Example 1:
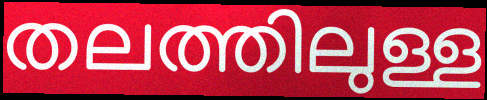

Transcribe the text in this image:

തലത്തിലുള്ള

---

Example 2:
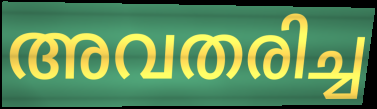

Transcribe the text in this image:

അവതരിച്ച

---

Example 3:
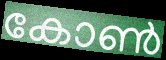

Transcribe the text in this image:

കോൺ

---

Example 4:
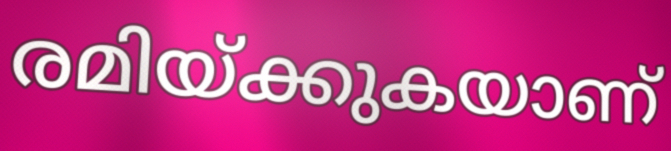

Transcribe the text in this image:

രമിയ്ക്കുകയാണ്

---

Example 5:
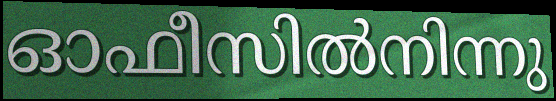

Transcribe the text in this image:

ഓഫീസിൽനിന്നു